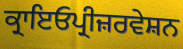
ਕ੍ਰਾਇਓਪ੍ਰੀਜ਼ਰਵੇਸ਼ਨ